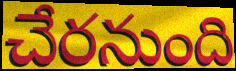
చేరనుంది